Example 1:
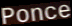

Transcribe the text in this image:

Ponce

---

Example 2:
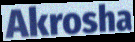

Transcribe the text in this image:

Akrosha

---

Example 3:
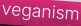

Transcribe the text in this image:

veganism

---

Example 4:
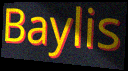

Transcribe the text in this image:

Baylis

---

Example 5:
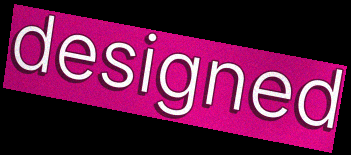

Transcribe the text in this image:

designed